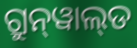
ଗ୍ରୁନ୍‌ୱାଲ୍‌ଡ